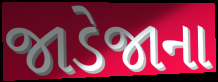
જાડેજાના